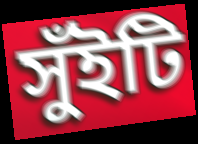
সুঁইটি